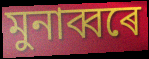
মুনাব্বৰে